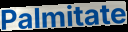
Palmitate